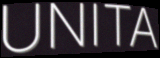
UNITA